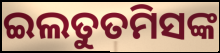
ଇଲତୁତମିସଙ୍କ